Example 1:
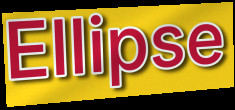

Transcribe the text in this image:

Ellipse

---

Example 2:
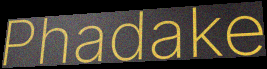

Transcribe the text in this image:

Phadake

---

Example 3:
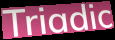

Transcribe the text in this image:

Triadic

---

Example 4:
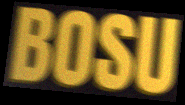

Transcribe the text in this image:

BOSU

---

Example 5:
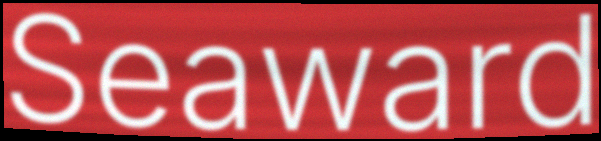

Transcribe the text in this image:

Seaward